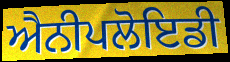
ਐਨੀਪਲੋਇਡੀ